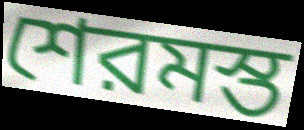
শেরমস্ত